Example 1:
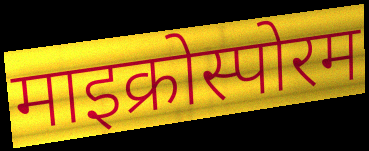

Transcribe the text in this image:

माइक्रोस्पोरम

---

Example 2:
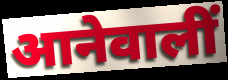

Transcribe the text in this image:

आनेवालीं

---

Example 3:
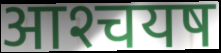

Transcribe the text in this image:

आश्चयष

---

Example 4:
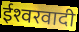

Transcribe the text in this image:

ईश्वरवादी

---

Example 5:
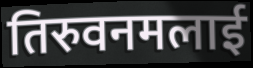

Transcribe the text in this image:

तिरुवनमलाई